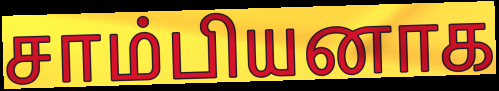
சாம்பியனாக